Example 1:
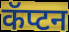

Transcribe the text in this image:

कॅप्टन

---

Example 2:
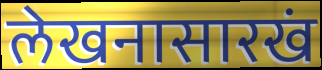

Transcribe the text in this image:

लेखनासारखं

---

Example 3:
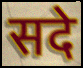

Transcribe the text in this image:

सदे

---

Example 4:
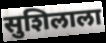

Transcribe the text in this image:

सुशिलाला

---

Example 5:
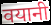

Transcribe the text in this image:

वयानी